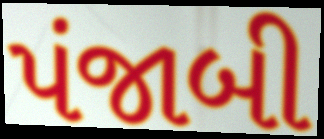
પંજાબી